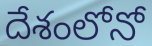
దేశంలోనో